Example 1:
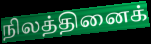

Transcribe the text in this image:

நிலத்தினைக்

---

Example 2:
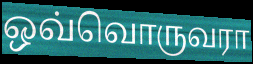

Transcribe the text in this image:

ஒவ்வொருவரா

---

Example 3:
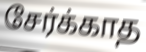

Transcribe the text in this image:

சேர்க்காத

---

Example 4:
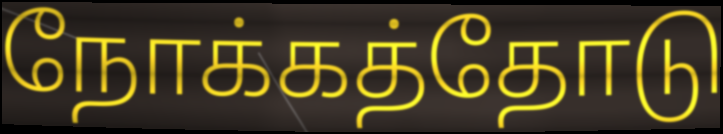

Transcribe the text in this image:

நோக்கத்தோடு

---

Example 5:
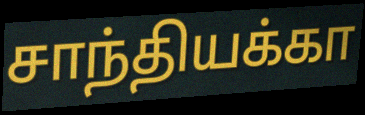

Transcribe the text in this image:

சாந்தியக்கா